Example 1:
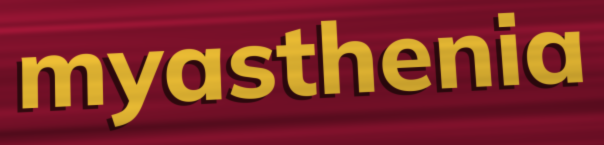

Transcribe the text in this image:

myasthenia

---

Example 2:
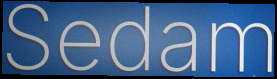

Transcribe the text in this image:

Sedam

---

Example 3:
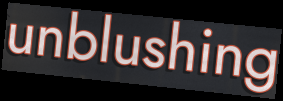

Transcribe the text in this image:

unblushing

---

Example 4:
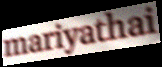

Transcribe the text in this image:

mariyathai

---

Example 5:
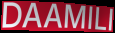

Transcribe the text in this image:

DAAMILI